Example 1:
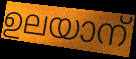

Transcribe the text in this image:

ഉലയാന്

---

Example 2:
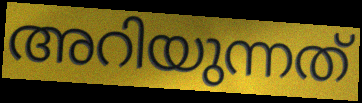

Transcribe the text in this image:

അറിയുന്നത്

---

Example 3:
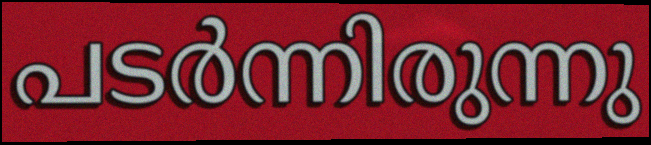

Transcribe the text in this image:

പടർന്നിരുന്നു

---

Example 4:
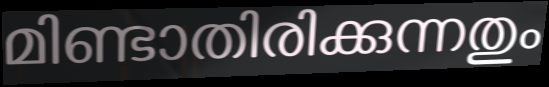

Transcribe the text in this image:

മിണ്ടാതിരിക്കുന്നതും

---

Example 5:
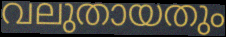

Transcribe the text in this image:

വലുതായതും